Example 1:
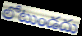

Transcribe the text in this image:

లోటుండదు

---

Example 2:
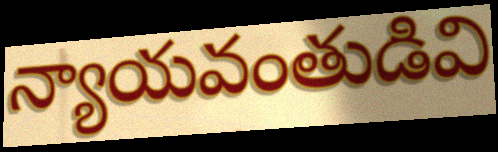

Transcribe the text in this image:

న్యాయవంతుడివి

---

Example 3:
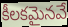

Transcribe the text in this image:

కీలకమైనవే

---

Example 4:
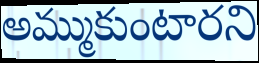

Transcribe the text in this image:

అమ్ముకుంటారని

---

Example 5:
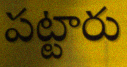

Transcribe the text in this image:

పట్టారు